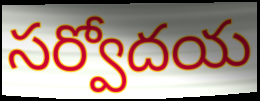
సర్వోదయ